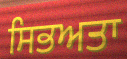
ਸਿਭਅਤਾ